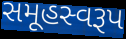
સમૂહસ્વરૂપ